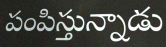
పంపిస్తున్నాడు